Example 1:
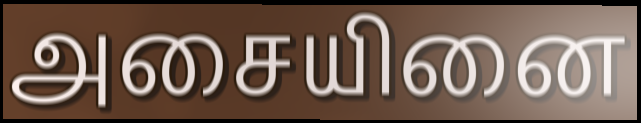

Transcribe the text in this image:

அசையினை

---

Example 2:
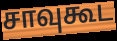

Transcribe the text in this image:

சாவுகூட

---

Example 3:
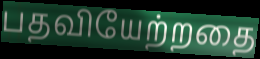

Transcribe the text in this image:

பதவியேற்றதை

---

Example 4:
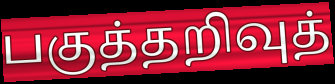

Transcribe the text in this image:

பகுத்தறிவுத்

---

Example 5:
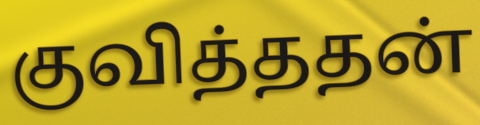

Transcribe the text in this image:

குவித்ததன்